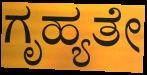
ಗೃಹ್ಯತೇ